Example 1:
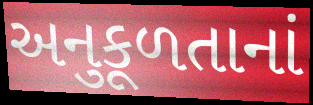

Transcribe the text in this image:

અનુકૂળતાનાં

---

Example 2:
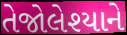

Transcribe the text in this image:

તેજોલેશ્યાને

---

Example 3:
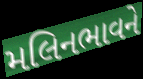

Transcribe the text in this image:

મલિનભાવને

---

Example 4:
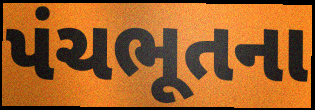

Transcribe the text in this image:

પંચભૂતના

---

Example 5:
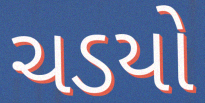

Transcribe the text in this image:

ચડયો